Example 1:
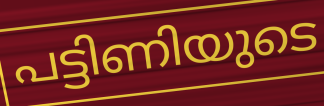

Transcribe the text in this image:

പട്ടിണിയുടെ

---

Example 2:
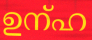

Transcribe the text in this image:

ഉന്ഹ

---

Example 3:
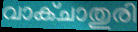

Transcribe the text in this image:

വാക്ചാതുരി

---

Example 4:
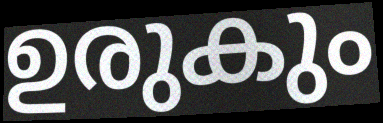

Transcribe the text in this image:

ഉരുകും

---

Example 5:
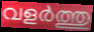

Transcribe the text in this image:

വളർത്തു